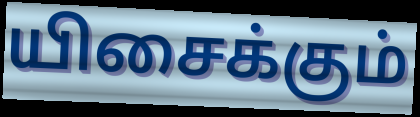
யிசைக்கும்